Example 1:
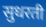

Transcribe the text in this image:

सुधरती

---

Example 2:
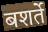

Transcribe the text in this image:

बशर्ते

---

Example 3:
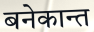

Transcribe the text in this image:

बनेकान्त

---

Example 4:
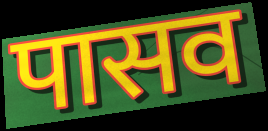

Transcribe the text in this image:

पासव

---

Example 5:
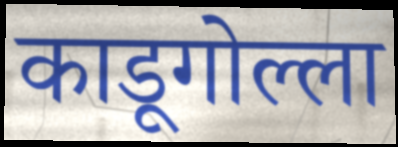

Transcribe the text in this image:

काडूगोल्ला